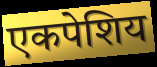
एकपेशिय